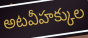
అటవీహక్కుల